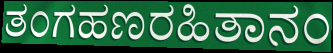
ತಂಗಹಣರಹಿತಾನಂ